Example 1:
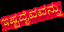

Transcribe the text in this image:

ಇಷ್ಟದೈವವನ್ನು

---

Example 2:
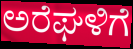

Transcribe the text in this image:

ಅರೆಘಳಿಗೆ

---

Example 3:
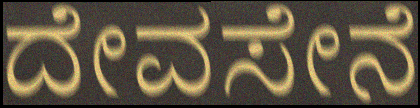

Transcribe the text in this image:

ದೇವಸೇನೆ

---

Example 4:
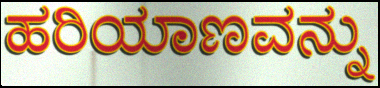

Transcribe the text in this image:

ಹರಿಯಾಣವನ್ನು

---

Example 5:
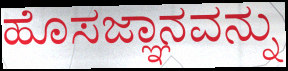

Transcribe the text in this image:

ಹೊಸಜ್ಞಾನವನ್ನು